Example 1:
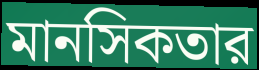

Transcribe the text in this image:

মানসিকতার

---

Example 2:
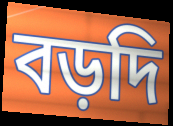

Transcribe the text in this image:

বড়দি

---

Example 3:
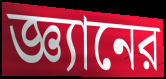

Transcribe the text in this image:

জ্ঞ্যানের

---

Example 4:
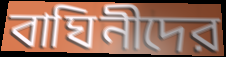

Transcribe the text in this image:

বাঘিনীদের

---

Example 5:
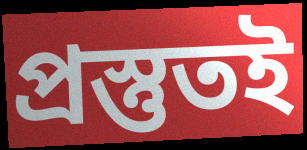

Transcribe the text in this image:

প্রস্তুতই